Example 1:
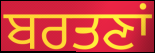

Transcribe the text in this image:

ਬਰਤਣਾਂ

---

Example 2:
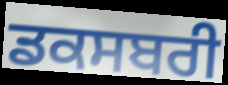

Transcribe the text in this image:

ਡਕਸਬਰੀ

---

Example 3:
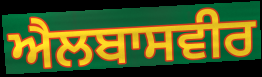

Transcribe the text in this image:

ਐਲਬਾਸਵੀਰ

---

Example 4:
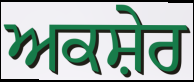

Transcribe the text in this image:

ਅਕਸ਼ੇਰ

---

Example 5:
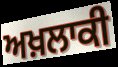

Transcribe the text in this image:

ਅਖ਼ਲਾਕੀ